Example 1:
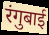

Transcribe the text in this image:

रंगुबाई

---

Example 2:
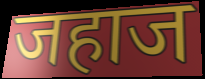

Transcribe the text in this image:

जहाज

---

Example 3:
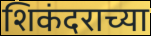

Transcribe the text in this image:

शिकंदराच्या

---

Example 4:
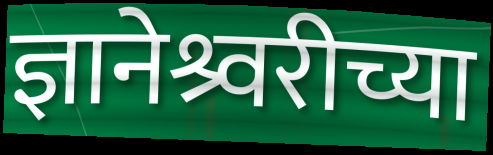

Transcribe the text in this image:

ज्ञानेश्र्वरीच्या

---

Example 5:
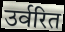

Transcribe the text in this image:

उर्वरित